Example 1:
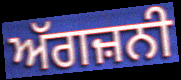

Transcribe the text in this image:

ਅੱਗਜ਼ਨੀ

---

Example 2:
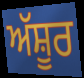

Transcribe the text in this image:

ਅੱਸ਼ੂਰ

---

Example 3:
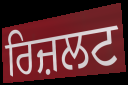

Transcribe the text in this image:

ਰਿਜ਼ਲਟ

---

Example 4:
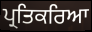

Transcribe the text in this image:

ਪ੍ਰਤਿਕਰਿਆ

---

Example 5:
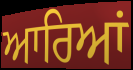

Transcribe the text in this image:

ਆਰਿਆਂ